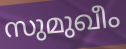
സുമുഖീം